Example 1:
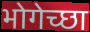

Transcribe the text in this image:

भोगेच्छा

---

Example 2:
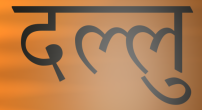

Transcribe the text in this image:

दल्लु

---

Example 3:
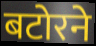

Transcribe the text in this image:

बटोरने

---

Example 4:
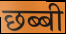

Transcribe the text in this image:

छब्बी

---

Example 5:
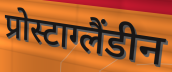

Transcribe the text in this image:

प्रोस्टाग्लैंडीन